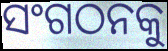
ସଂଗଠନକୁ